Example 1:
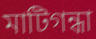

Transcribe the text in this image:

মাটিগন্ধা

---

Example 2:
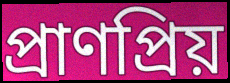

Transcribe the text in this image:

প্রাণপ্রিয়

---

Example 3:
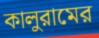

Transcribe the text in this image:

কালুরামের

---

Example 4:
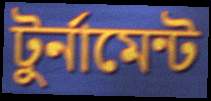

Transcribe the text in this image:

টুর্নামেন্ট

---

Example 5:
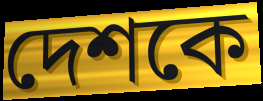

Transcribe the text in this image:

দেশকে